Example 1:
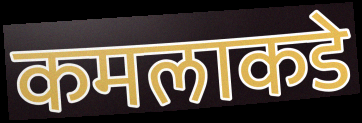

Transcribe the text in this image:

कमलाकडे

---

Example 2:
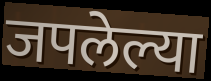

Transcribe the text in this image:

जपलेल्या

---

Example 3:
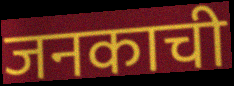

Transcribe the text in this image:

जनकाची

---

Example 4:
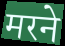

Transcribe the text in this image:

मरने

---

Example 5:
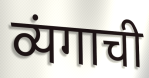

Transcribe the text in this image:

व्यंगाची